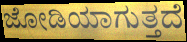
ಜೋಡಿಯಾಗುತ್ತದೆ